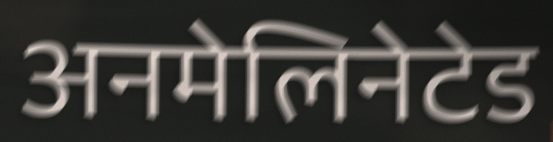
अनमेलिनेटेड